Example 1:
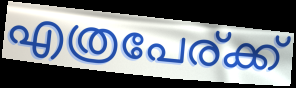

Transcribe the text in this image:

എത്രപേര്ക്ക്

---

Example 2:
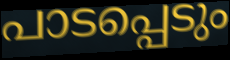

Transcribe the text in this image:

പാടപ്പെടും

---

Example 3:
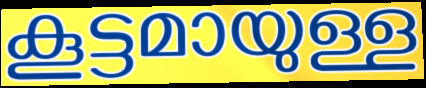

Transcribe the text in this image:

കൂട്ടമായുള്ള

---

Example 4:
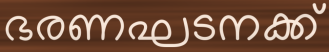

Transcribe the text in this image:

ഭരണഘടനക്ക്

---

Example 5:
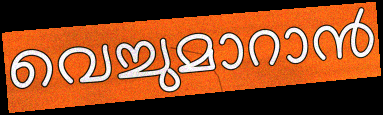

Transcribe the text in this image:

വെച്ചുമാറാൻ